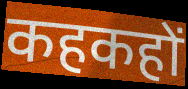
कहकहों